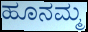
ಹೂನಮ್ಮ